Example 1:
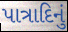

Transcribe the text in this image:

પાત્રાદિનું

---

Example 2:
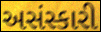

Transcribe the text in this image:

અસંસ્કારી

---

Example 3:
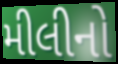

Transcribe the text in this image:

મીલીનો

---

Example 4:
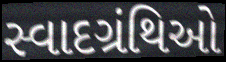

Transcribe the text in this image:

સ્વાદગ્રંથિઓ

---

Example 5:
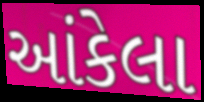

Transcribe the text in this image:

આંકેલા